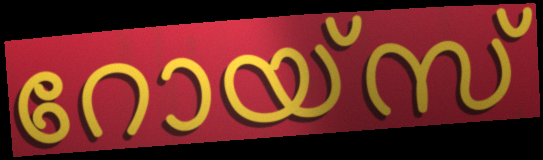
റോയ്സ്